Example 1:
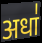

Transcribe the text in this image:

अधा॑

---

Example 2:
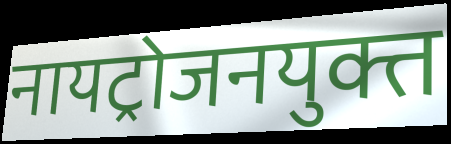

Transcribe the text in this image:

नायट्रोजनयुक्त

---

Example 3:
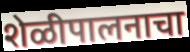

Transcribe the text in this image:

शेळीपालनाचा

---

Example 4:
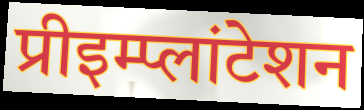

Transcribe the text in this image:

प्रीइम्प्लांटेशन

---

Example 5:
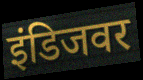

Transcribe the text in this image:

इंडिजवर